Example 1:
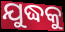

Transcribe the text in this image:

ଯୁଦ୍ଧକୁ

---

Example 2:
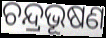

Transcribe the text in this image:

ଚନ୍ଦ୍ରଭୂଷଣ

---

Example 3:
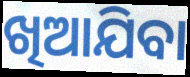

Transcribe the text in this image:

ଖିଆଯିବା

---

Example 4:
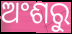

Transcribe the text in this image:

ଅଂଶରୁ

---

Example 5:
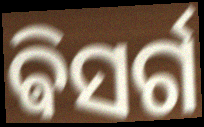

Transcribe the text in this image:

ଵିସର୍ଗ